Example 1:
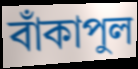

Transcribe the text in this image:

বাঁকাপুল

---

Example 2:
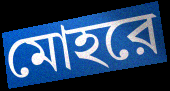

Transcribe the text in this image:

মোহরে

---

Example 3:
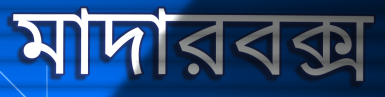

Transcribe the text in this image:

মাদারবক্স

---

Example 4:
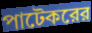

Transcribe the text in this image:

পাটেকরের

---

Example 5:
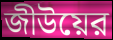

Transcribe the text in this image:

জীউয়ের